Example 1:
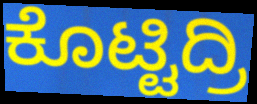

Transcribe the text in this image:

ಕೊಟ್ಟಿದ್ರಿ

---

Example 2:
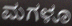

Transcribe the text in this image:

ಮಗಳೂ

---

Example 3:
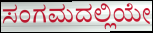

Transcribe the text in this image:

ಸಂಗಮದಲ್ಲಿಯೇ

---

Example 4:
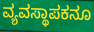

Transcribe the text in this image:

ವ್ಯವಸ್ಥಾಪಕನೂ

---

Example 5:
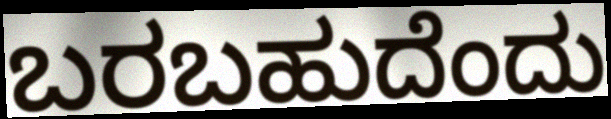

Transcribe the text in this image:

ಬರಬಹುದೆಂದು